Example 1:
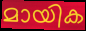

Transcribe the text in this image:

മായിക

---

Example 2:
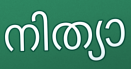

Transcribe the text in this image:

നിത്യാ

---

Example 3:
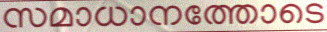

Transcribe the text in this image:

സമാധാനത്തോടെ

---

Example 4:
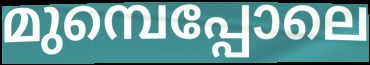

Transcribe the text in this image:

മുമ്പെപ്പോലെ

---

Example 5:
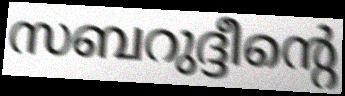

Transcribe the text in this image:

സബറുദ്ദീന്റെ